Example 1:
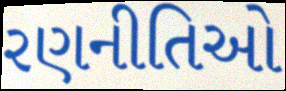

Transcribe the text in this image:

રણનીતિઓ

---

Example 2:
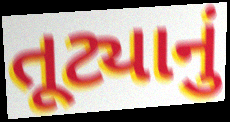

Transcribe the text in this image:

તૂટ્યાનું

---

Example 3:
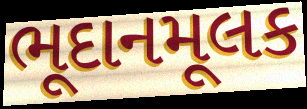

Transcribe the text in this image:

ભૂદાનમૂલક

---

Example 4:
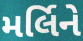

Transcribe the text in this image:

મર્લિને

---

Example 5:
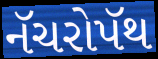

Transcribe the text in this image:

નૅચરોપૅથ